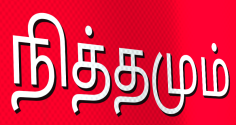
நித்தமும்